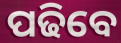
ପଢିବେ